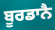
ਬੂਰਡਾਨੈ